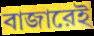
বাজারেই